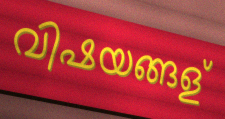
വിഷയങ്ങള്